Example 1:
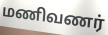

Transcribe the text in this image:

மணிவணர்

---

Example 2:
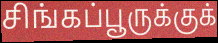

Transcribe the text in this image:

சிங்கப்பூருக்குக்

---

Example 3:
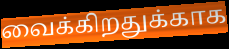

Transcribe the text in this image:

வைக்கிறதுக்காக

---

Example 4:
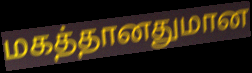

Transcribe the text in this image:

மகத்தானதுமான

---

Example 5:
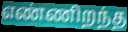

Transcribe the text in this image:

எண்ணிறந்த